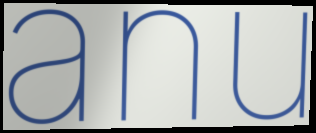
anu